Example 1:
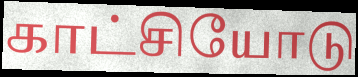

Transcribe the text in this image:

காட்சியோடு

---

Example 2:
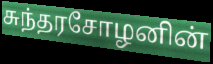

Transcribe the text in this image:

சுந்தரசோழனின்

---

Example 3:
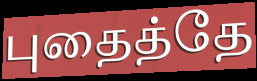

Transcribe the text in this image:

புதைத்தே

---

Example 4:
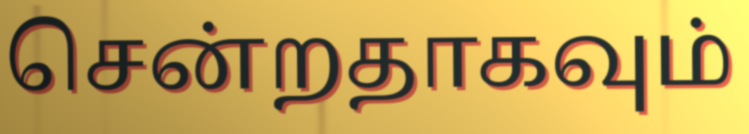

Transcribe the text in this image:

சென்றதாகவும்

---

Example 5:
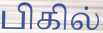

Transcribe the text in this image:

பிகில்